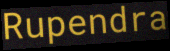
Rupendra